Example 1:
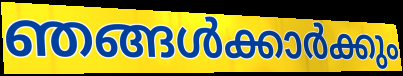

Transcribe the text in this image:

ഞങ്ങൾക്കാർക്കും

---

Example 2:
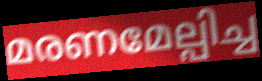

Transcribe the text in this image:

മരണമേല്പിച്ച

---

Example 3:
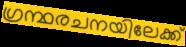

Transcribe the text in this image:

ഗ്രന്ഥരചനയിലേക്ക്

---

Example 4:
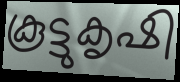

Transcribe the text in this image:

കൂട്ടുകൃഷി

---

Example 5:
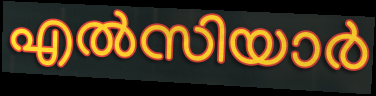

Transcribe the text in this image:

എൽസിയാർ